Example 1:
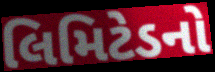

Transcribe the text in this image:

લિમિટેડનો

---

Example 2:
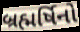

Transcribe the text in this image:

બ્રહ્મર્ષિનો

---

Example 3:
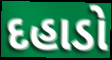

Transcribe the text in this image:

દહાડો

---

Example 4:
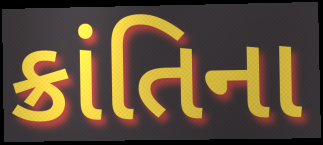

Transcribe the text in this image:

ક્રાંતિના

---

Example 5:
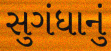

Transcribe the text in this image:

સુગંધાનું